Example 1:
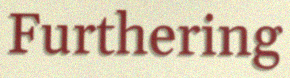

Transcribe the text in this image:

Furthering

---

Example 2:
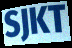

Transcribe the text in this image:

SJKT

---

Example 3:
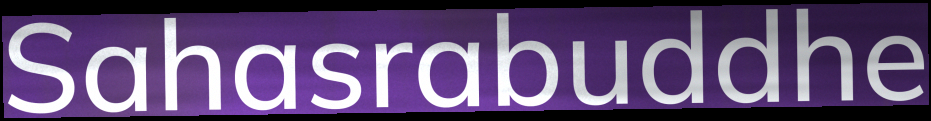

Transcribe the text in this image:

Sahasrabuddhe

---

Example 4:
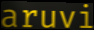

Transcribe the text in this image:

aruvi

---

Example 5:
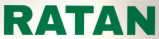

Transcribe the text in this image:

RATAN